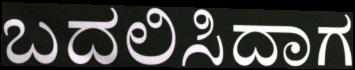
ಬದಲಿಸಿದಾಗ